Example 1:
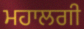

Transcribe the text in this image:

ਮਹਾਲਗੀ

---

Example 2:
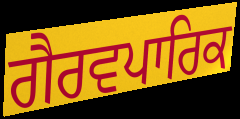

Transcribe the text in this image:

ਗੈਰਵਪਾਰਿਕ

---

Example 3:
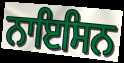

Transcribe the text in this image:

ਨਾਇਸਿਨ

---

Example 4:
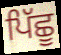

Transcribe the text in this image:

ਪਿੱਛੂ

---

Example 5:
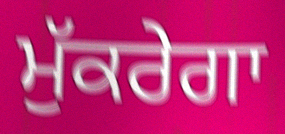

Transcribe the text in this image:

ਮੁੱਕਰੇਗਾ